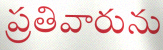
ప్రతివారును